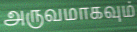
அருவமாகவும்